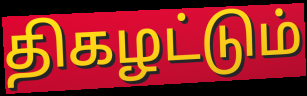
திகழட்டும்